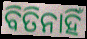
ବିତିନାହିଁ